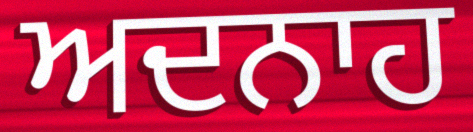
ਅਦਨਾਹ